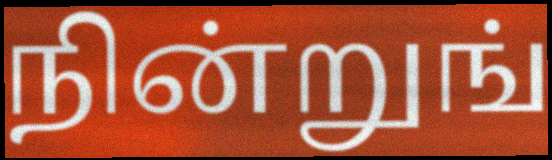
நின்றுங்